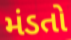
મંડતો